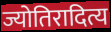
ज्योतिरादित्य